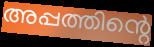
അപ്പത്തിന്റെ